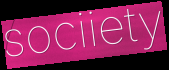
sociiety